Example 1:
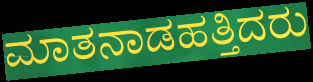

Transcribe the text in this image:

ಮಾತನಾಡಹತ್ತಿದರು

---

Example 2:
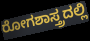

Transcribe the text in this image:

ರೋಗಶಾಸ್ತ್ರದಲ್ಲಿ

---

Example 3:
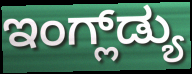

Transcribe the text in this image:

ಇಂಗ್ಲ್‌ಡ್ಯು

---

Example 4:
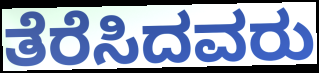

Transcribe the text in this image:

ತೆರೆಸಿದವರು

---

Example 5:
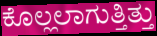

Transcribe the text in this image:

ಕೊಲ್ಲಲಾಗುತ್ತಿತ್ತು